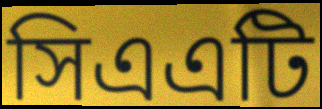
সিএএটি